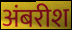
अंबरीश